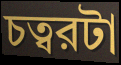
চত্বরটা